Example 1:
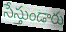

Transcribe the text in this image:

సేస్తుండారు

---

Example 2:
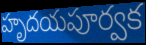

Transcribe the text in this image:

హృదయపూర్వక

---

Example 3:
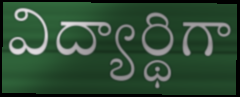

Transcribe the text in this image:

విద్యార్థిగా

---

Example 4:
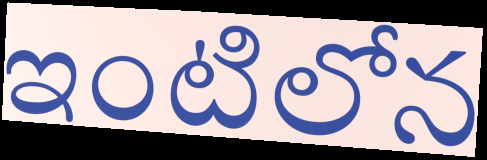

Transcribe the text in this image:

ఇంటిలోన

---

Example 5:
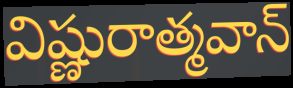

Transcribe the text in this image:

విష్ణురాత్మవాన్